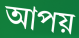
আপয়